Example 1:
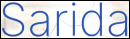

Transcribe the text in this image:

Sarida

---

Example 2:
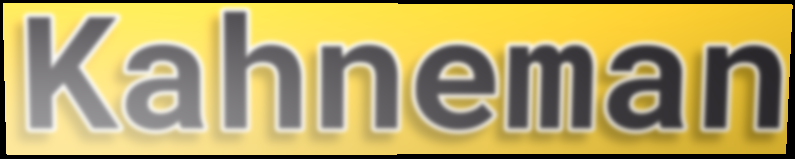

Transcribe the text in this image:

Kahneman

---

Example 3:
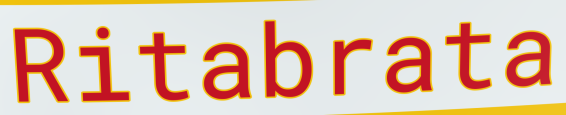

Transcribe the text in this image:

Ritabrata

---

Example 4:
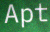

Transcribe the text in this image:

Apt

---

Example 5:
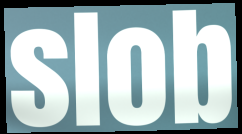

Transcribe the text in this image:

slob